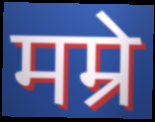
मम्रे